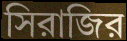
সিরাজির